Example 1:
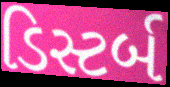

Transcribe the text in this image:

ડિસ્ટર્બ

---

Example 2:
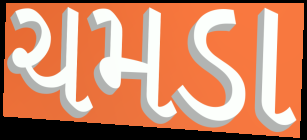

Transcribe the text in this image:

ચમડા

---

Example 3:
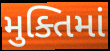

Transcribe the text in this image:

મુક્તિમાં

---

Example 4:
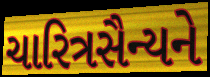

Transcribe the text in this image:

ચારિત્રસૈન્યને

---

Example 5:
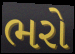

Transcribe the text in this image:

ભરો